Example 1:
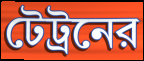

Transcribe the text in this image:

টেট্রনের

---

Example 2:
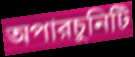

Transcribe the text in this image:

অপারচুনিটি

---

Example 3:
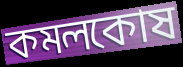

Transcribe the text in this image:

কমলকোষ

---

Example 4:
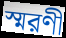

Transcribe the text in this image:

স্মরণী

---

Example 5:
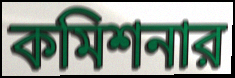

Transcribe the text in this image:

কমিশনার